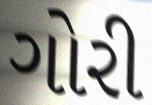
ગોરી